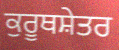
ਕੁਰੂਥਸ਼ੇਤਰ